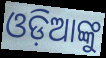
ଓଡ଼ିଆଙ୍କୁ